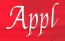
Appl